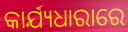
କାର୍ଯ୍ୟଧାରାରେ